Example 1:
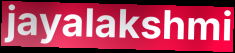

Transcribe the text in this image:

jayalakshmi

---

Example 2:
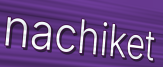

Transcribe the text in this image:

nachiket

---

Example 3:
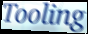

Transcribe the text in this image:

Tooling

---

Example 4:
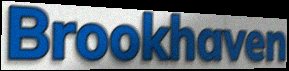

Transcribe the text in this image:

Brookhaven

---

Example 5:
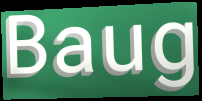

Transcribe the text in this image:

Baug